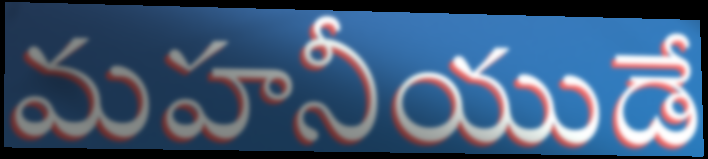
మహనీయుడే